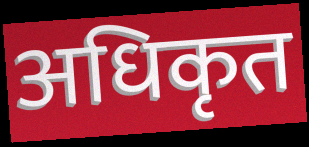
अधिकृत